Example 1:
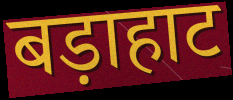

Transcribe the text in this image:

बड़ाहाट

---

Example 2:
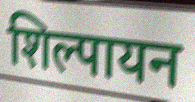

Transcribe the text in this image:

शिल्पायन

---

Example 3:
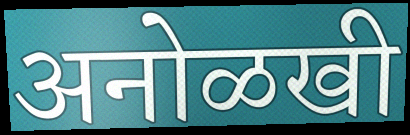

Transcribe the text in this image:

अनोळखी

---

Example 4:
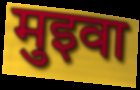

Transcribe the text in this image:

मुइवा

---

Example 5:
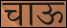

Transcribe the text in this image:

चाऊ